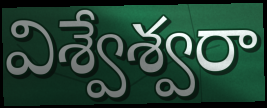
విశ్వేశ్వరా